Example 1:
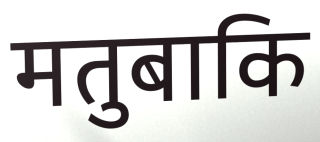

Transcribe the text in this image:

मतुबाकि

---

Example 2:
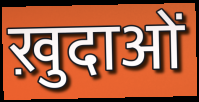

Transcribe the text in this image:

ख़ुदाओं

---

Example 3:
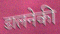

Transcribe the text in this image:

डालनेकी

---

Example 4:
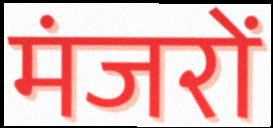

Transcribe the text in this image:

मंजरों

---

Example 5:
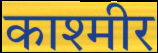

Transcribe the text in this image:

काश्मीर